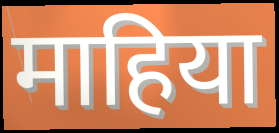
माहिया